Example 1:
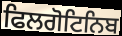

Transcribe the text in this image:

ਫਿਲਗੋਟਿਨਿਬ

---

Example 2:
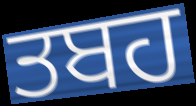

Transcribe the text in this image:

ਤਬਹ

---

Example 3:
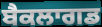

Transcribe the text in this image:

ਬੈਕਲਾਗਡ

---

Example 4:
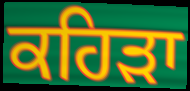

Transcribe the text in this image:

ਕਹਿੜਾ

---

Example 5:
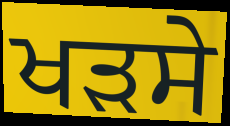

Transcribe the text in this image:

ਖੜਸੇ